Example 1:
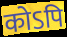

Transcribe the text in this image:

कोऽपि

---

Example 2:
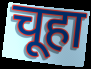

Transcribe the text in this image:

चूहा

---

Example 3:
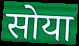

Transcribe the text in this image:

सोया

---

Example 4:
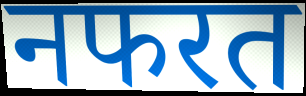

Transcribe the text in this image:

नफरत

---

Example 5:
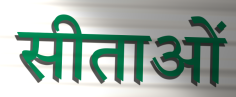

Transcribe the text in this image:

सीताओं